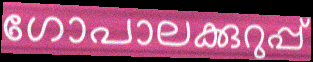
ഗോപാലക്കുറുപ്പ്